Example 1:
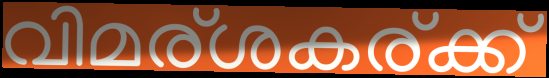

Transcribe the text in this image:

വിമര്ശകര്ക്ക്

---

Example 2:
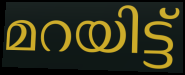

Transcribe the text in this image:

മറയിട്ട്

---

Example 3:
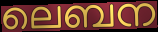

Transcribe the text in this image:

ലെബന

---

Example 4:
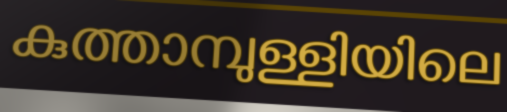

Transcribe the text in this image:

കുത്താമ്പുള്ളിയിലെ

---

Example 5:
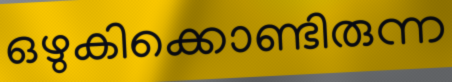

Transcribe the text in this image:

ഒഴുകിക്കൊണ്ടിരുന്ന